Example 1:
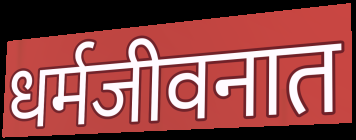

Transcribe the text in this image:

धर्मजीवनात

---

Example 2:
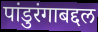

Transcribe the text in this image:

पांडुरंगाबद्दल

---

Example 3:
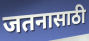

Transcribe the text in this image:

जतनासाठी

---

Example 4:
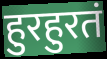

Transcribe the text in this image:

हुरहुरतं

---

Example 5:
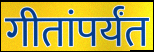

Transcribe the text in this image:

गीतांपर्यंत